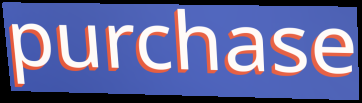
purchase